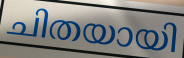
ചിതയായി